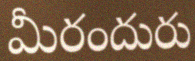
మీరందురు